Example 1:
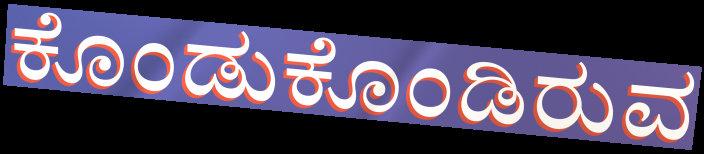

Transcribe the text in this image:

ಕೊಂಡುಕೊಂಡಿರುವ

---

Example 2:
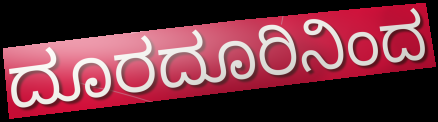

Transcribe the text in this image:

ದೂರದೂರಿನಿಂದ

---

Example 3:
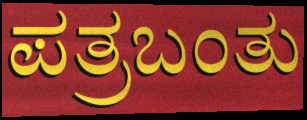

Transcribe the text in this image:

ಪತ್ರಬಂತು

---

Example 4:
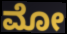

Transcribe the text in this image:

ಮೋ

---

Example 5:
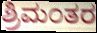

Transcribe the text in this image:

ಶ್ರಿಮಂತರ